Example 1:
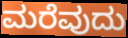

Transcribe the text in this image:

ಮರೆವುದು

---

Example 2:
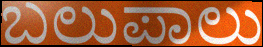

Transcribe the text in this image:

ಬಲುಪಾಲು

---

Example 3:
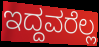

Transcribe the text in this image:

ಇದ್ದವರೆಲ್ಲ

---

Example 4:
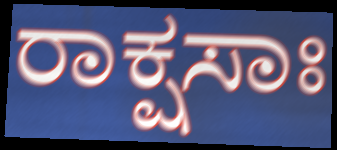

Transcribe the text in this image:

ರಾಕ್ಷಸಾಃ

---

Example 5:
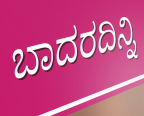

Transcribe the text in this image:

ಬಾದರದಿನ್ನಿ